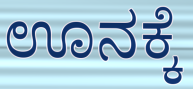
ಊನಕ್ಕೆ